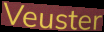
Veuster